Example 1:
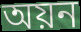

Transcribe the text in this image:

অয়ন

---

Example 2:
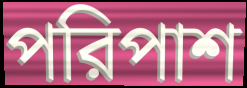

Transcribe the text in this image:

পরিপাশ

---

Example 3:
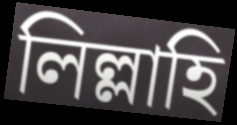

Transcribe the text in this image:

লিল্লাহি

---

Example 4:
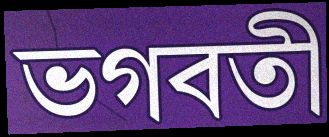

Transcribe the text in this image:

ভগবতী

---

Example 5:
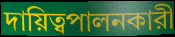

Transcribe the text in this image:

দায়িত্বপালনকারী